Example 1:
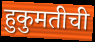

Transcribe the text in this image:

हुकुमतीची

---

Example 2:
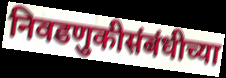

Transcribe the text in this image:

निवडणुकीसंबंधीच्या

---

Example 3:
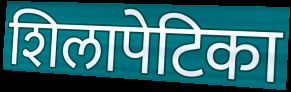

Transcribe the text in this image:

शिलापेटिका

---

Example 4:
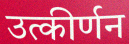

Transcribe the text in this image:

उत्कीर्णन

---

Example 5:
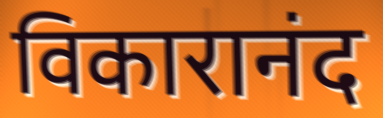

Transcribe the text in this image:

विकारानंद